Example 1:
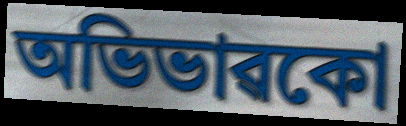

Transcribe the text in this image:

অভিভাৱকো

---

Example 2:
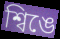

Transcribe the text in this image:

শ্বিঙে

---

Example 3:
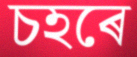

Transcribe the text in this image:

চহৰে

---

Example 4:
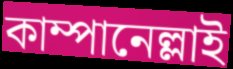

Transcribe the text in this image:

কাম্পানেল্লাই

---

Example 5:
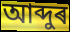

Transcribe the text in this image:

আব্দুৰ